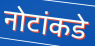
नोटांकडे